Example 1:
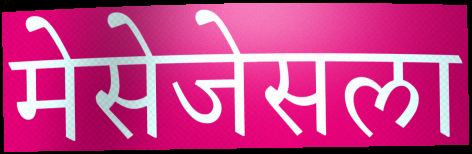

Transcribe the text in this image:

मेसेजेसला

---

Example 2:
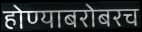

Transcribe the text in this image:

होण्याबरोबरच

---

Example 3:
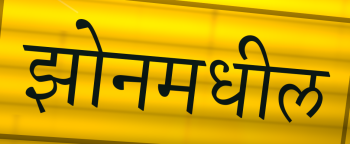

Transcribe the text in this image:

झोनमधील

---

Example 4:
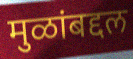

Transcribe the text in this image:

मुळांबद्दल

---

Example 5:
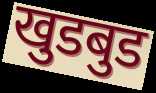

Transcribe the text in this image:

खुडबुड